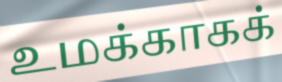
உமக்காகக்